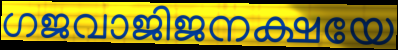
ഗജവാജിജനക്ഷയേ